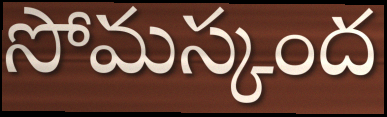
సోమస్కంద